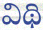
విథి